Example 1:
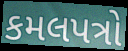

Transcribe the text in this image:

કમલપત્રો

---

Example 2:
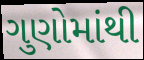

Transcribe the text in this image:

ગુણોમાંથી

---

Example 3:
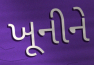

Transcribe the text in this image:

ખૂનીને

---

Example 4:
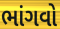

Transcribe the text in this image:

ભાંગવો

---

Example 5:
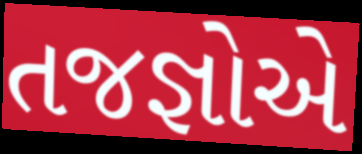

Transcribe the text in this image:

તજજ્ઞોએ